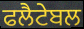
ਫਲੈਟੇਬਲ